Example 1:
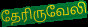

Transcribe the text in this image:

தேரிருவேலி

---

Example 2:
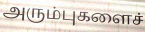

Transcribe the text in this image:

அரும்புகளைச்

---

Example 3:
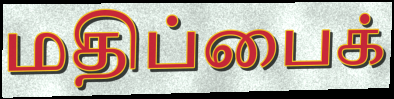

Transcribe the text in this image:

மதிப்பைக்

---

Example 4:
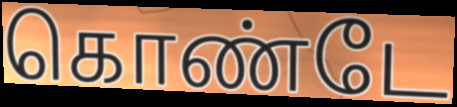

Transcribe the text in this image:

கொண்டே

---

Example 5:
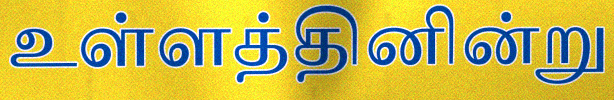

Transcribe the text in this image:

உள்ளத்தினின்று